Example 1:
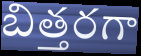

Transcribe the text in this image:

బిత్తరగా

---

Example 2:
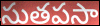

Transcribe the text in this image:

సుతపసా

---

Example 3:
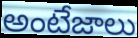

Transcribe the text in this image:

అంటేజాలు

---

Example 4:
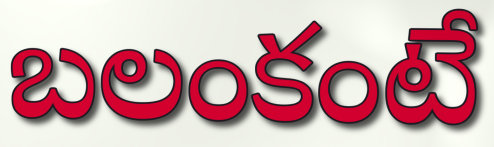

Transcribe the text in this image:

బలంకంటే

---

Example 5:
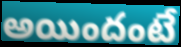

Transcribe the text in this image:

అయిందంటే